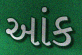
આંક